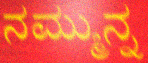
ನಮ್ಮುನ್ನ